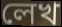
লেখ